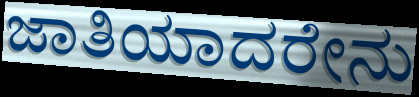
ಜಾತಿಯಾದರೇನು